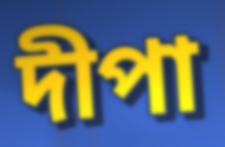
দীপা